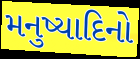
મનુષ્યાદિનો